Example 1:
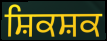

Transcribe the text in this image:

ਸ਼ਿਕਸ਼ਕ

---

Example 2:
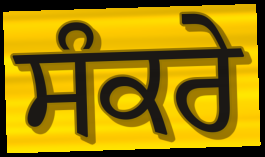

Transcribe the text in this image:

ਸੰਕਰੇ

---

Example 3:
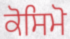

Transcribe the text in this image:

ਕੋਸਿਮੋ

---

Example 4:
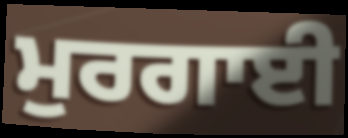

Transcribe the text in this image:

ਮੁਰਗਾਈ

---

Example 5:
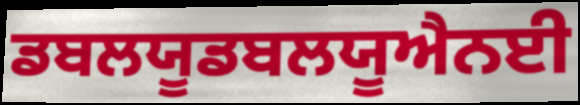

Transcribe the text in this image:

ਡਬਲਯੂਡਬਲਯੂਐਨਈ